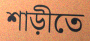
শাড়ীতে